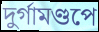
দুর্গামণ্ডপে